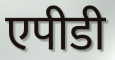
एपीडी